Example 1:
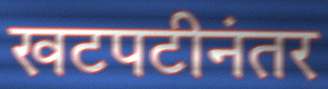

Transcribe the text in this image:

खटपटीनंतर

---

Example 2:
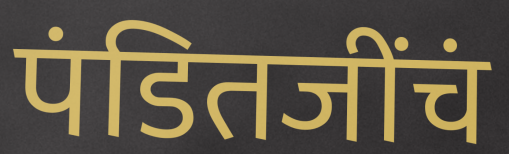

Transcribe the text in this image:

पंडितजींचं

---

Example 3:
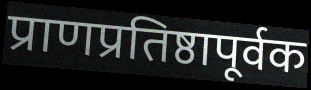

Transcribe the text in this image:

प्राणप्रतिष्ठापूर्वक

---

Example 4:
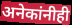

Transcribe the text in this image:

अनेकांनीही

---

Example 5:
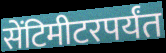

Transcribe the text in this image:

सेंटिमीटरपर्यंत